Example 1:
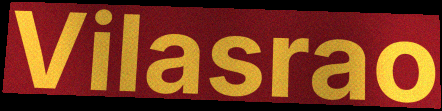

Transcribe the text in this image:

Vilasrao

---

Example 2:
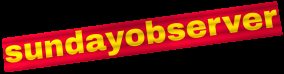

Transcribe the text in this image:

sundayobserver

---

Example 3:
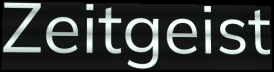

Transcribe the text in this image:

Zeitgeist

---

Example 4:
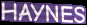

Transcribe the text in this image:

HAYNES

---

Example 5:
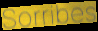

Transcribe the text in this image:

Sorribes